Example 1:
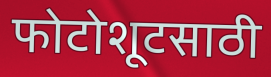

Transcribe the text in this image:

फोटोशूटसाठी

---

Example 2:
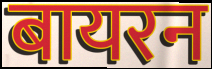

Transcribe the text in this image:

बायरन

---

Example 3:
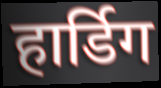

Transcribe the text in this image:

हार्डिग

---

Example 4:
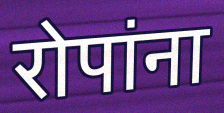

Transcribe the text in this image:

रोपांना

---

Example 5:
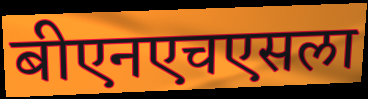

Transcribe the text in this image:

बीएनएचएसला